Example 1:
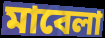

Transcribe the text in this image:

মাবেলা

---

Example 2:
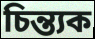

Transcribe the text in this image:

চিন্ত্যক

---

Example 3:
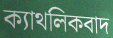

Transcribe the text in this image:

ক্যাথলিকবাদ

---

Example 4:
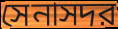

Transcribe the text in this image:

সেনাসদর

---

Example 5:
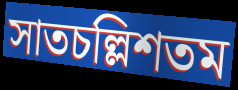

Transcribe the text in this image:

সাতচল্লিশতম